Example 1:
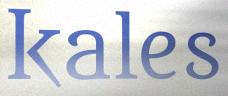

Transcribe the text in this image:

kales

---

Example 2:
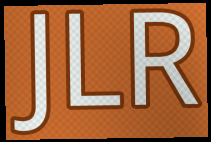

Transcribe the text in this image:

JLR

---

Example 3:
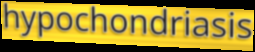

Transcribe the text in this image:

hypochondriasis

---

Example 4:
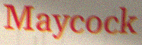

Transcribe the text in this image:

Maycock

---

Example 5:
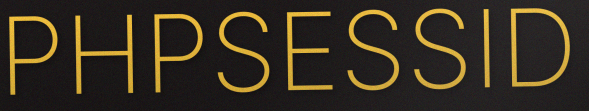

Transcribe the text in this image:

PHPSESSID